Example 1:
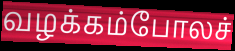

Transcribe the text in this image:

வழக்கம்போலச்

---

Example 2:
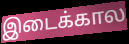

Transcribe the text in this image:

இடைக்கால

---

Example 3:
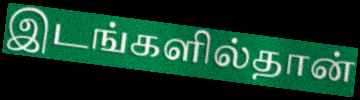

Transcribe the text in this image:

இடங்களில்தான்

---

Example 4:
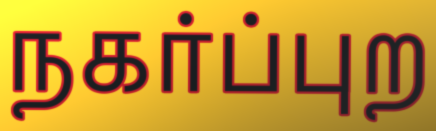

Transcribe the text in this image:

நகர்ப்புற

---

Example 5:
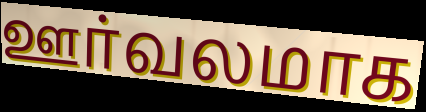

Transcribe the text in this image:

ஊர்வலமாக